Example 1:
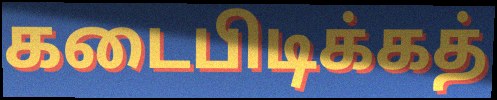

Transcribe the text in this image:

கடைபிடிக்கத்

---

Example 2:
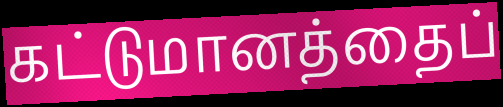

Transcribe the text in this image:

கட்டுமானத்தைப்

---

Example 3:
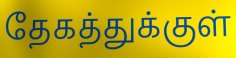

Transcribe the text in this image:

தேகத்துக்குள்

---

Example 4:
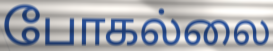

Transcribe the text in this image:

போகல்லை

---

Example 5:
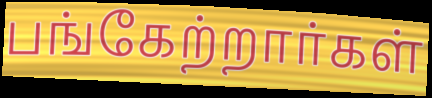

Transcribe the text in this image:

பங்கேற்றார்கள்